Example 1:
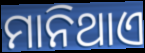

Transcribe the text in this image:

ମାନିଥାଏ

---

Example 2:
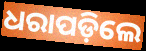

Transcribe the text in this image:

ଧରାପଡ଼ିଲେ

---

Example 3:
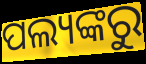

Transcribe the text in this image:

ପଲ୍ୟଙ୍କରୁ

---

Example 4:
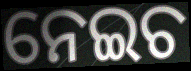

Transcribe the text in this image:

ନେଇଚ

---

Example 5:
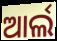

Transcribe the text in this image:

ଆର୍ଲ